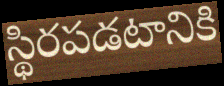
స్థిరపడటానికి